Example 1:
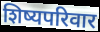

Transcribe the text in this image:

शिष्यपरिवार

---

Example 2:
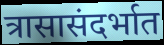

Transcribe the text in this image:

त्रासासंदर्भात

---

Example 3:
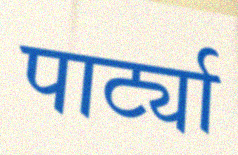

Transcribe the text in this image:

पार्ट्या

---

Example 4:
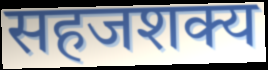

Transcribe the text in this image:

सहजशक्य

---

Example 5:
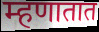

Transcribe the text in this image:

म्हणातात